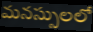
మనస్సులలో